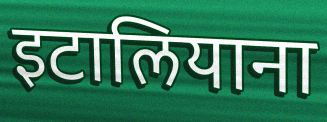
इटालियाना